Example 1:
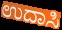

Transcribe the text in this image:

ಉದಾಸಿ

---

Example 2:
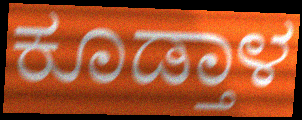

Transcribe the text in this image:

ಕೂಡ್ತಾಳ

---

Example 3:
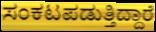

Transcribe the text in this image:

ಸಂಕಟಪಡುತ್ತಿದ್ದಾರೆ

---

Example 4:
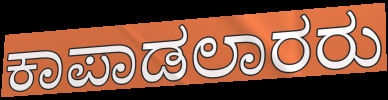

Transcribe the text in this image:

ಕಾಪಾಡಲಾರರು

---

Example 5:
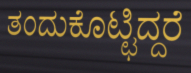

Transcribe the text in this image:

ತಂದುಕೊಟ್ಟಿದ್ದರೆ